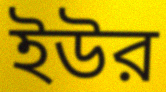
ইউর